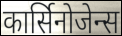
कार्सिनोजेन्स